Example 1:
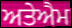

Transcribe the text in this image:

ਅਤੇਐਮ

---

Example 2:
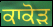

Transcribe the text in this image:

ਕਾਕੋੜ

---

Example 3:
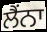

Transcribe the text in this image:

ਲੈਂਨਾ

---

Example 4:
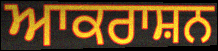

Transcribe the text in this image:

ਆਕਰਾਸ਼ਨ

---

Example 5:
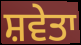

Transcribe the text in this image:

ਸ਼ਵੇਤਾ